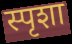
स्पृशा